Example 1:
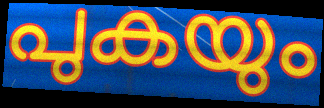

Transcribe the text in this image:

പുകയും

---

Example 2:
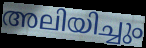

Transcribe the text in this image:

അലിയിച്ചും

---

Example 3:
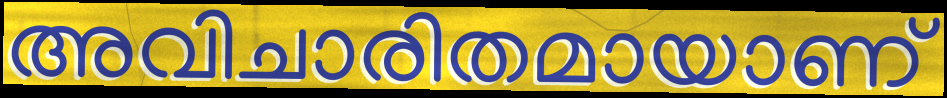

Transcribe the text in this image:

അവിചാരിതമായാണ്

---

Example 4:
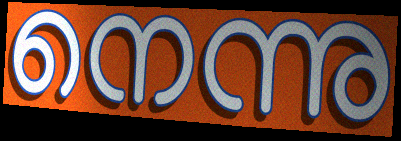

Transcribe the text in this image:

നെന്നു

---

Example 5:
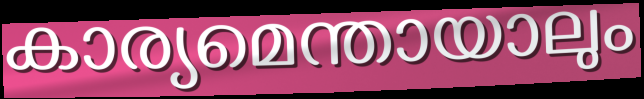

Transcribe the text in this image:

കാര്യമെന്തായാലും